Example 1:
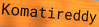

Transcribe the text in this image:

Komatireddy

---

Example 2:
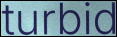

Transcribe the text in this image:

turbid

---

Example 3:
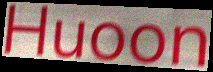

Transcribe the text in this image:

Huoon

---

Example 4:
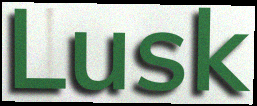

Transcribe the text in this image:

Lusk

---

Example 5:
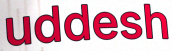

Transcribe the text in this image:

uddesh